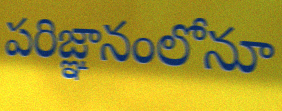
పరిజ్ఞానంలోనూ